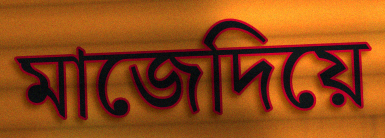
মাজেদিয়ে